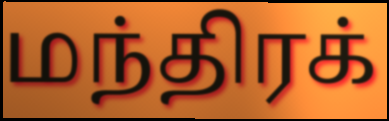
மந்திரக்